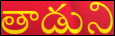
తాడుని